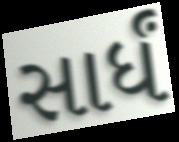
સાર્ધં